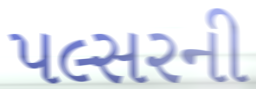
પલ્સરની